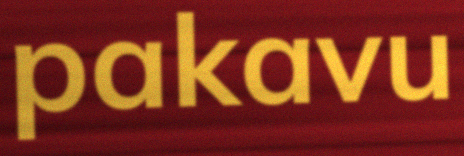
pakavu